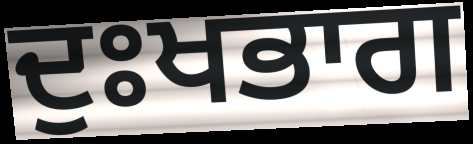
ਦੁਃਖਭਾਗ